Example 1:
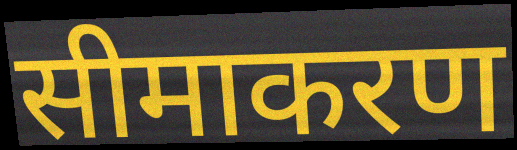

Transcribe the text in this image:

सीमाकरण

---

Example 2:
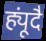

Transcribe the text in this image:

ह्यूंदै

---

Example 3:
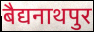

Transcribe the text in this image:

बैद्यनाथपुर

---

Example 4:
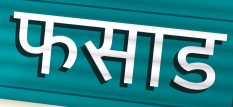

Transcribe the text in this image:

फसाड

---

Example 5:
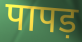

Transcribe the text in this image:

पापड़